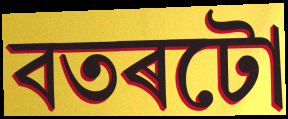
বতৰটো